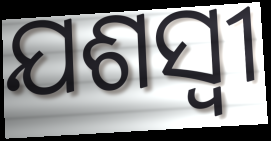
ଯଶସ୍ବୀ